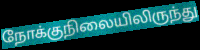
நோக்குநிலையிலிருந்து